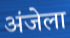
अंजेला